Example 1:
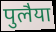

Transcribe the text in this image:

पुलैया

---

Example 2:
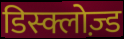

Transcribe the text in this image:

डिस्क्लोज़्ड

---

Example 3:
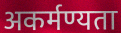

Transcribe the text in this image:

अकर्मण्यता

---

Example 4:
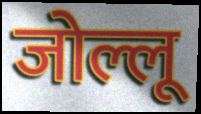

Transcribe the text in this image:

जोल्लू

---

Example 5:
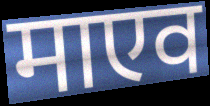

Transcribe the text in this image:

माएव